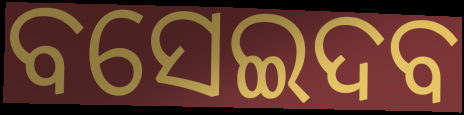
ବସେଇଦବ